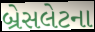
બ્રેસલેટના